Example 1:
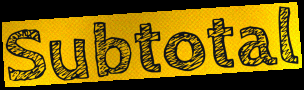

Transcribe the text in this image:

Subtotal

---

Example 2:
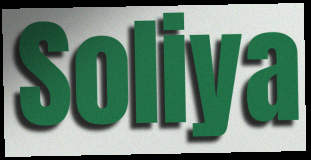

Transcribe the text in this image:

Soliya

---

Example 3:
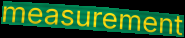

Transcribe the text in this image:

measurement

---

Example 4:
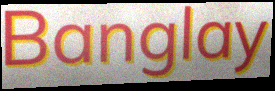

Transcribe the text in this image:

Banglay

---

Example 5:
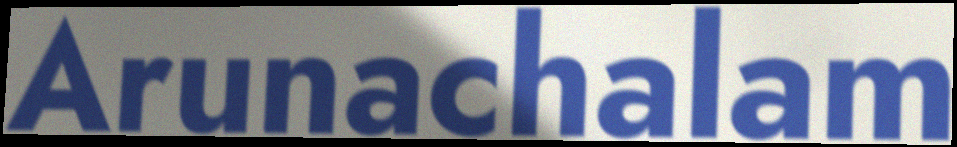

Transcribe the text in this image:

Arunachalam